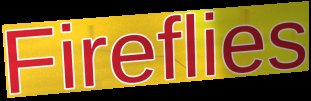
Fireflies